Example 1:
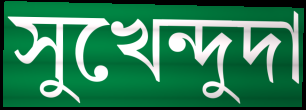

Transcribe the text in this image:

সুখেন্দুদা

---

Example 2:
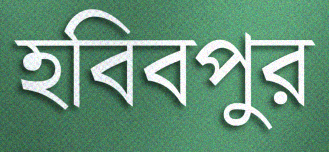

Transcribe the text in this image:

হবিবপুর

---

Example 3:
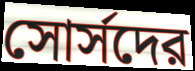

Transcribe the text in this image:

সোর্সদের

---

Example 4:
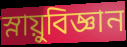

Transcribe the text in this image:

স্নায়ুবিজ্ঞান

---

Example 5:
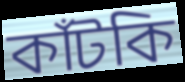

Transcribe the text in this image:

কাঁটকি